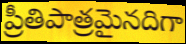
ప్రీతిపాత్రమైనదిగా